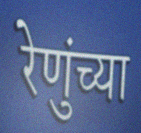
रेणुंच्या